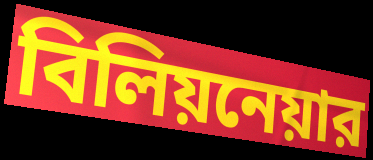
বিলিয়নেয়ার